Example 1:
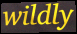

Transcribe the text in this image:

wildly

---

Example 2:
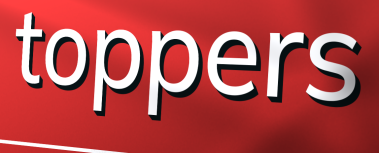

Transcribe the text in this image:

toppers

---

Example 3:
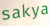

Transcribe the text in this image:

sakya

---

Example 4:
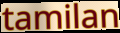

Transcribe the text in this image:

tamilan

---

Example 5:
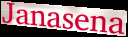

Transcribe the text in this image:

Janasena